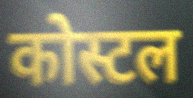
कोस्टल